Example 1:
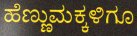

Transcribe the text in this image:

ಹೆಣ್ಣುಮಕ್ಕಳಿಗೂ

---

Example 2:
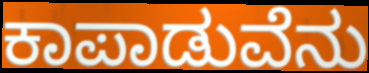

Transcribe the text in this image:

ಕಾಪಾಡುವೆನು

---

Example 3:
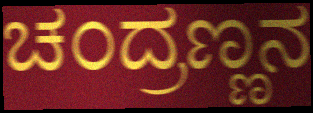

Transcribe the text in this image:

ಚಂದ್ರಣ್ಣನ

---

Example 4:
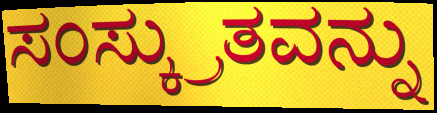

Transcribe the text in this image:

ಸಂಸ್ಕ್ರುತವನ್ನು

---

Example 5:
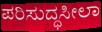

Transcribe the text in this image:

ಪರಿಸುದ್ಧಸೀಲಾ